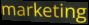
marketing